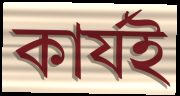
কাৰ্যই